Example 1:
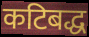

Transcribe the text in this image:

कटिबद्ध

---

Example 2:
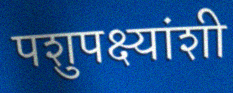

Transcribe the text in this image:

पशुपक्ष्यांशी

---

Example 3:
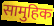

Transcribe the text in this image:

सामुहिक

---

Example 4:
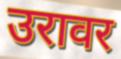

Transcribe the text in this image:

उरावर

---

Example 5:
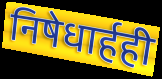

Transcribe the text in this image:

निषेधार्हही